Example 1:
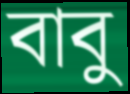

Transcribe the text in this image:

বাবু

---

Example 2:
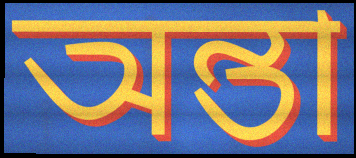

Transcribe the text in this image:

অন্তা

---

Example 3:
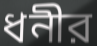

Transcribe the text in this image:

ধনীর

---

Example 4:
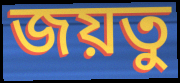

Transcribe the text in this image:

জয়তু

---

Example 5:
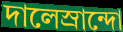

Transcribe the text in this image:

দালেস্রান্দো